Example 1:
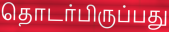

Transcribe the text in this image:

தொடர்பிருப்பது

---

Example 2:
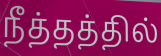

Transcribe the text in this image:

நீத்தத்தில்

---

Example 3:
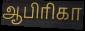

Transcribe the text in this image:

ஆபிரிகா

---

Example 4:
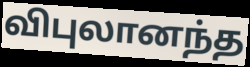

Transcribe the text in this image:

விபுலானந்த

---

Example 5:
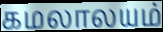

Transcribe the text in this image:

கமலாலயம்